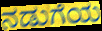
ನಡುಗೆಯ